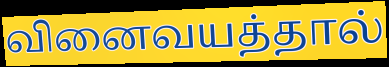
வினைவயத்தால்